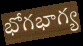
భోగభాగ్య